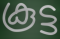
കൂട്ട